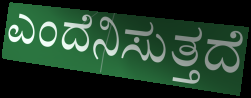
ಎಂದೆನಿಸುತ್ತದೆ